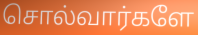
சொல்வார்களே